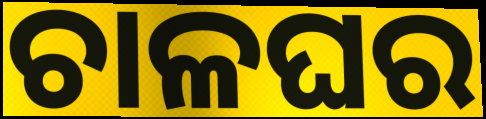
ଚାଳଘର